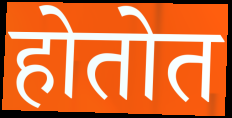
होतोत